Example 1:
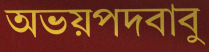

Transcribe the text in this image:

অভয়পদবাবু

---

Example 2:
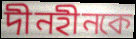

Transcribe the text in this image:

দীনহীনকে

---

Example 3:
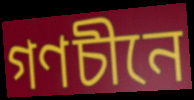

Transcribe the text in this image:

গণচীনে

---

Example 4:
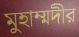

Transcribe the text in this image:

মুহাম্মদীর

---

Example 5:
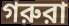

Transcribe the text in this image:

গরুরা